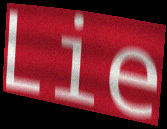
Lie